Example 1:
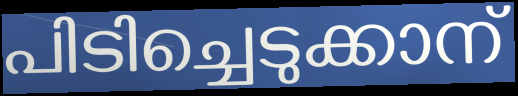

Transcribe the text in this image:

പിടിച്ചെടുക്കാന്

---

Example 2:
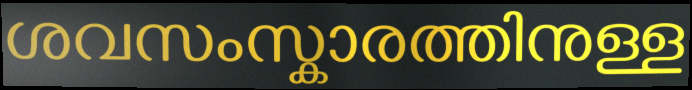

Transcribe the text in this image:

ശവസംസ്കാരത്തിനുള്ള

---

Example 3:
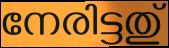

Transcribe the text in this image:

നേരിട്ടതു്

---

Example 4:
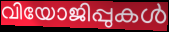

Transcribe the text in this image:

വിയോജിപ്പുകൾ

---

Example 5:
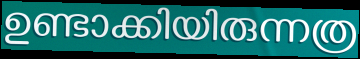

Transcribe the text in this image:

ഉണ്ടാക്കിയിരുന്നത്ര